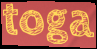
toga